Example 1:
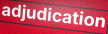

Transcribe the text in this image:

adjudication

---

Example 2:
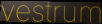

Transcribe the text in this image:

vestrum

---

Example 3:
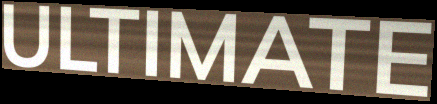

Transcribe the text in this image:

ULTIMATE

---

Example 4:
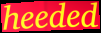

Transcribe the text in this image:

heeded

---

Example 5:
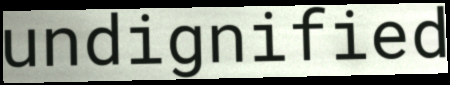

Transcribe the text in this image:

undignified